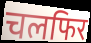
चलफिर